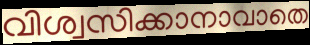
വിശ്വസിക്കാനാവാതെ